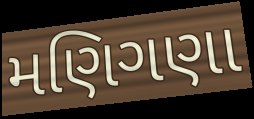
મણિગણા